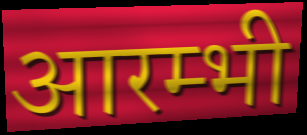
आरम्भी